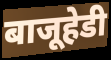
बाजूहेडी